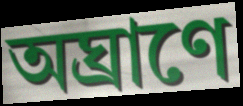
অঘ্রাণে